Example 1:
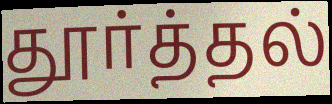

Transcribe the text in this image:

தூர்த்தல்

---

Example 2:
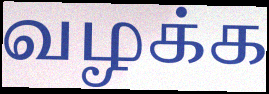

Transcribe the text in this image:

வழக்க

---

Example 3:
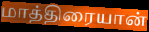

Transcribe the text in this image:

மாத்திரையான்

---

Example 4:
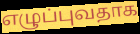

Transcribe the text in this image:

எழுப்புவதாக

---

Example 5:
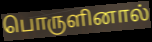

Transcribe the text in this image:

பொருளினால்